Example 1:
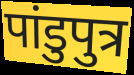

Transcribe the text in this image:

पांडुपुत्र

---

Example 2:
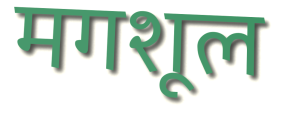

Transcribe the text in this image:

मगशूल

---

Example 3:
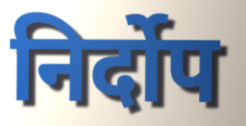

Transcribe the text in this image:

निर्दोप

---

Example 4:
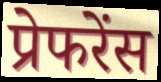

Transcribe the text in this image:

प्रेफरेंस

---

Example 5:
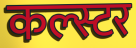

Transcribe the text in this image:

कल्स्टर